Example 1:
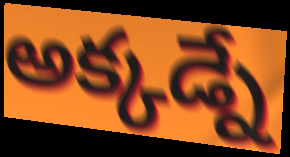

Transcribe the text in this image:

అక్కడ్నే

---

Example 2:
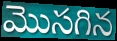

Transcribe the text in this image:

మొసగిన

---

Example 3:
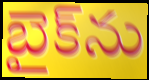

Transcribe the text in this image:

బైక్‌ను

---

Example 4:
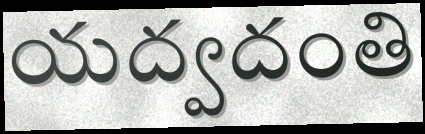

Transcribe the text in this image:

యద్వదంతి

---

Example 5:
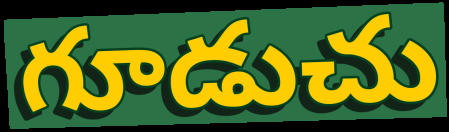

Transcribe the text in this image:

గూడుచు